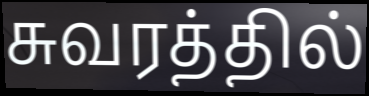
சுவரத்தில்